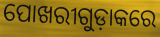
ପୋଖରୀଗୁଡ଼ାକରେ